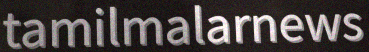
tamilmalarnews